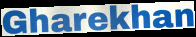
Gharekhan